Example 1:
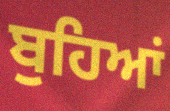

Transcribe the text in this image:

ਬੁਹਿਆਂ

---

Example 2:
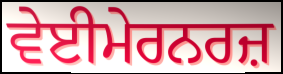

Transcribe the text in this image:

ਵੇਈਮੇਰਨਰਜ਼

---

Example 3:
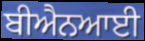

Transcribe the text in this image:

ਬੀਐਨਆਈ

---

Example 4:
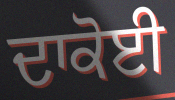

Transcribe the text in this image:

ਦਾਕੋਈ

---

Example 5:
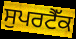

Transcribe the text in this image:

ਸੁਪਰਟੈੱਕ